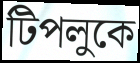
টিপলুকে